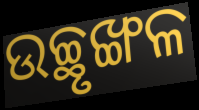
ଉଚ୍ଛୃଙ୍ଖଳ